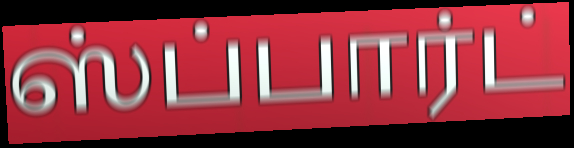
ஸ்ப்பார்ட்